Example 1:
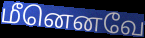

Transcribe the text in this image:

மீனெனவே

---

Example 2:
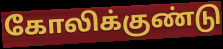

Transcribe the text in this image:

கோலிக்குண்டு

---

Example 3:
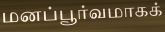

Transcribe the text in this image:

மனப்பூர்வமாகக்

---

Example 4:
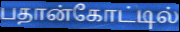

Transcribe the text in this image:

பதான்கோட்டில்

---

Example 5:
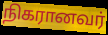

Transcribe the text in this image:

நிகரானவர்